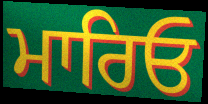
ਮਾਰਿਓ